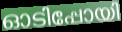
ഓടിപ്പോയി